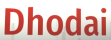
Dhodai